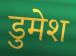
डुमेश